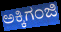
ಅಕ್ಕಿಗಂಜಿ